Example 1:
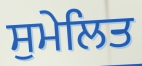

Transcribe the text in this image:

ਸੁਮੇਲਿਤ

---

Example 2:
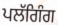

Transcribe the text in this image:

ਪਲੱਗਿੰਗ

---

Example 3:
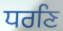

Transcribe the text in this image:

ਧਰਣਿ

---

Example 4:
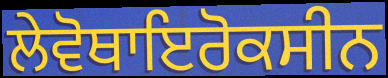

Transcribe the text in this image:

ਲੇਵੋਥਾਇਰੋਕਸੀਨ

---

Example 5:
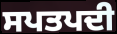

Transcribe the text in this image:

ਸਪਤਪਦੀ